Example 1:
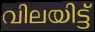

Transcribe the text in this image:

വിലയിട്ട്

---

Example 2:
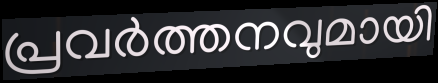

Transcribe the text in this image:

പ്രവർത്തനവുമായി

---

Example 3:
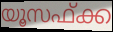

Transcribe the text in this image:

യൂസഫ്ക്ക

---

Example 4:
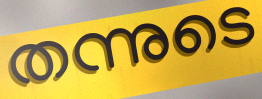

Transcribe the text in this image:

തന്നുടെ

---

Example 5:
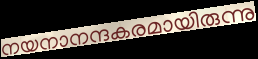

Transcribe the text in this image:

നയനാനന്ദകരമായിരുന്നു